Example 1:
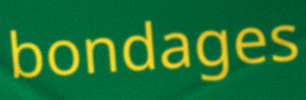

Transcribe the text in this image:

bondages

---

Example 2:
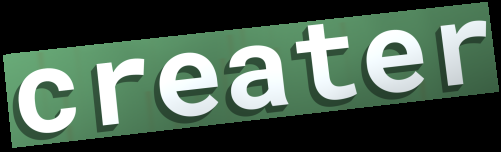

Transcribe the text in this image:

creater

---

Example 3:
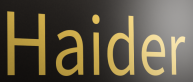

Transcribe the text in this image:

Haider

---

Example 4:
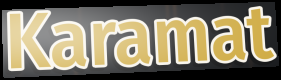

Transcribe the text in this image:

Karamat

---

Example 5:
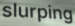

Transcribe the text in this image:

slurping